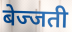
बेज्जती